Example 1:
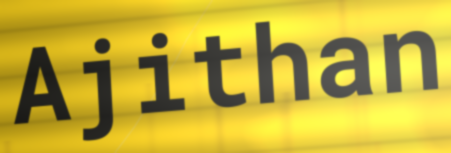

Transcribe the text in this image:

Ajithan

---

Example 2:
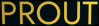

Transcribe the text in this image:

PROUT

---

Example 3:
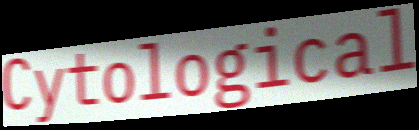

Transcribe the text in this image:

Cytological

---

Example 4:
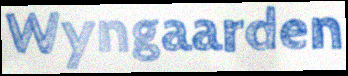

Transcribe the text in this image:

Wyngaarden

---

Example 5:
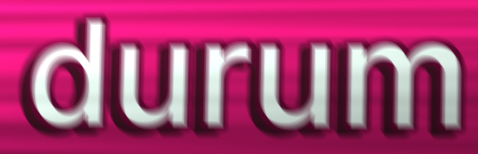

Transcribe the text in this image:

durum